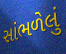
સાંભળેલું